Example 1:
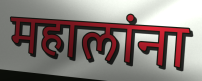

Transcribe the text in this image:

महालांना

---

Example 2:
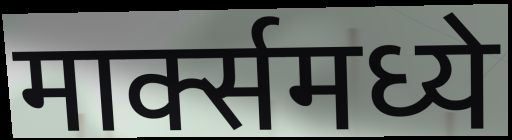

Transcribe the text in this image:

मार्क्समध्ये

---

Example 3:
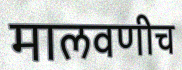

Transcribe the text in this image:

मालवणीच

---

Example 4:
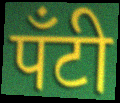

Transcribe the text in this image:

पॅंटी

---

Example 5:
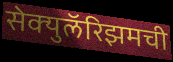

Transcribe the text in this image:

सेक्युलॅरिझमची